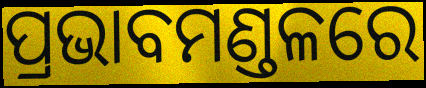
ପ୍ରଭାବମଣ୍ଡଳରେ